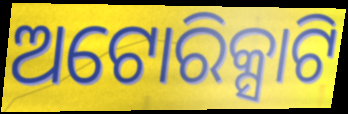
ଅଟୋରିକ୍ସାଟି